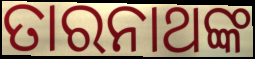
ତାରନାଥଙ୍କ